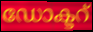
ഡോക്ടറ്